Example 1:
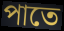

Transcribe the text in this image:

পাতে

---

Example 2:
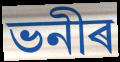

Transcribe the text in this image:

ভনীৰ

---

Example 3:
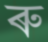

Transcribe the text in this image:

ৰু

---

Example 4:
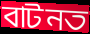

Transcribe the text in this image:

বাটনত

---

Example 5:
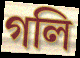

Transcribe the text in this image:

গলি